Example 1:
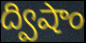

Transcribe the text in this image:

ద్విషాం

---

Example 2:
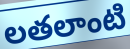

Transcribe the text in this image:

లతలాంటి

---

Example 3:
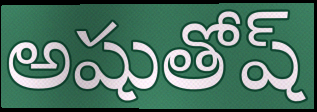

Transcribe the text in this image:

అషుతోష్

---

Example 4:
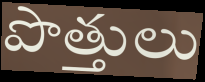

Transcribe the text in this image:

పొత్తులు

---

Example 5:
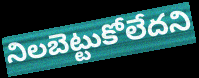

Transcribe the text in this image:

నిలబెట్టుకోలేదని